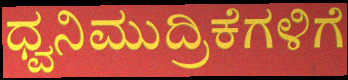
ಧ್ವನಿಮುದ್ರಿಕೆಗಳಿಗೆ